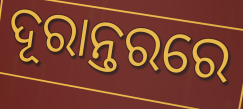
ଦୂରାନ୍ତରରେ